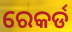
ରେକର୍ଡ